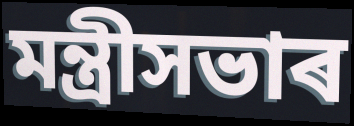
মন্ত্ৰীসভাৰ